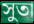
সুতা